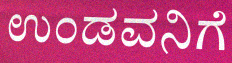
ಉಂಡವನಿಗೆ